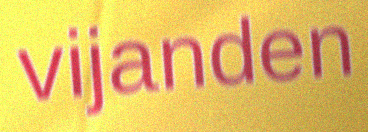
vijanden